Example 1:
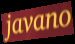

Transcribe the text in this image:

javano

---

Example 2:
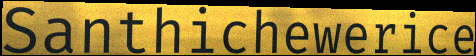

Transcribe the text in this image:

Santhichewerice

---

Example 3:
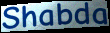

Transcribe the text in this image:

Shabda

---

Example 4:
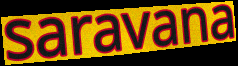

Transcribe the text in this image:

saravana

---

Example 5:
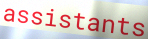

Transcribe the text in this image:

assistants